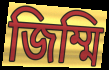
জিম্মি